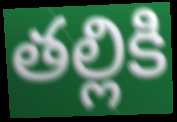
తల్లికి